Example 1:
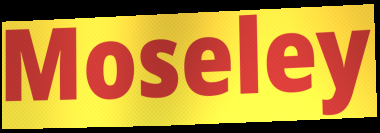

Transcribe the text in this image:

Moseley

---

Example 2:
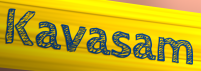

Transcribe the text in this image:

Kavasam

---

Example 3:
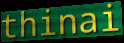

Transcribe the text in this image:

thinai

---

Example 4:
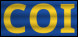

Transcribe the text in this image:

COI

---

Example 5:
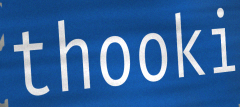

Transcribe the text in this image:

thooki